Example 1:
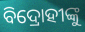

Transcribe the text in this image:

ବିଦ୍ରୋହୀଙ୍କୁ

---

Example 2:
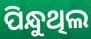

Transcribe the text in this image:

ପିନ୍ଧୁଥିଲ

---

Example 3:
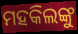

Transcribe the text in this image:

ମହକିଲଙ୍କୁ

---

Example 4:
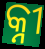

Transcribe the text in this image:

କ୍ନୀ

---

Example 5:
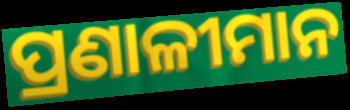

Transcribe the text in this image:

ପ୍ରଣାଳୀମାନ